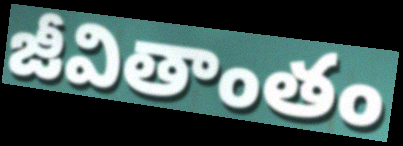
జీవితాంతం